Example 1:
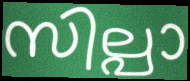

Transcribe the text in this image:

സില്പാ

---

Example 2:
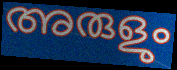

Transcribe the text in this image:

അരുളും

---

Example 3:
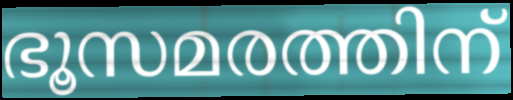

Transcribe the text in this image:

ഭൂസമരത്തിന്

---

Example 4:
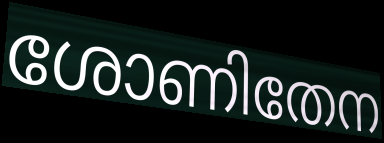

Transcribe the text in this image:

ശോണിതേന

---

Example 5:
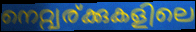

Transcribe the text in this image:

നെറ്റ്വര്ക്കുകളിലെ